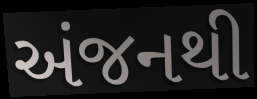
અંજનથી